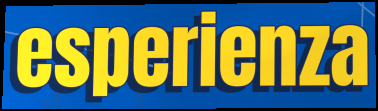
esperienza